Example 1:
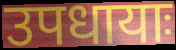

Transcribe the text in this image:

उपधायाः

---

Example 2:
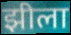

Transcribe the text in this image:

झीला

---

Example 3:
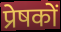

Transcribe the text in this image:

प्रेषकों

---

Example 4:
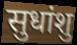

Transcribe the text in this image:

सुधांशु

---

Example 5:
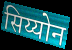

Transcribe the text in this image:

सिय्योन